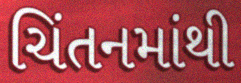
ચિંતનમાંથી